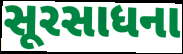
સૂરસાધના